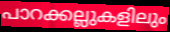
പാറക്കല്ലുകളിലും